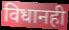
विधानही